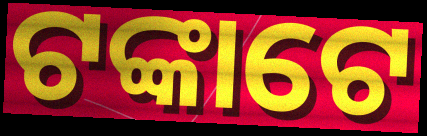
ଟଙ୍କାଟେ